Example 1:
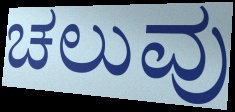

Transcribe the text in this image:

ಚಲುವು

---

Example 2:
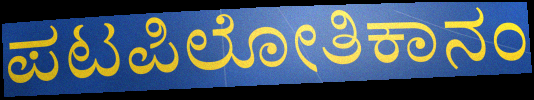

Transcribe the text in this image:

ಪಟಪಿಲೋತಿಕಾನಂ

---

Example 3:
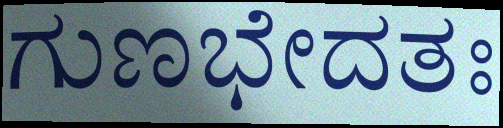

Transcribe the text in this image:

ಗುಣಭೇದತಃ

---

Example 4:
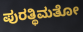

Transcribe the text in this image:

ಪುರತ್ಥಿಮತೋ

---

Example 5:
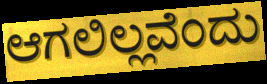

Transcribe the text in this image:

ಆಗಲಿಲ್ಲವೆಂದು